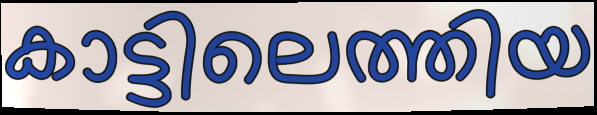
കാട്ടിലെത്തിയ